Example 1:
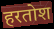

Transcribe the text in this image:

हरतोश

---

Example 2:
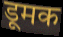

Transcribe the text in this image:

डूमक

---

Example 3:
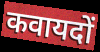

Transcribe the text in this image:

कवायदों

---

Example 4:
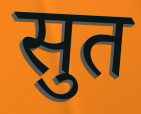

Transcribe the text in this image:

सुत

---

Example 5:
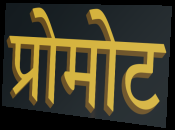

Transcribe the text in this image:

प्रोमोट